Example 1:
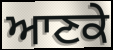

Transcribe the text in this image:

ਆਣਕੇ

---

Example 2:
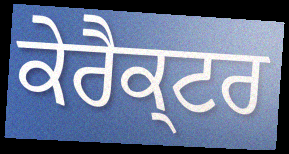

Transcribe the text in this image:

ਕੇਰੈਕ੍ਟਰ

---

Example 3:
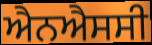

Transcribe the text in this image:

ਐਨਐਸਸੀ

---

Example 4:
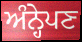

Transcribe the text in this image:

ਅੰਨ੍ਹੇਪਣ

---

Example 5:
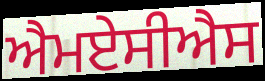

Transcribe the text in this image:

ਐਮਏਸੀਐਸ